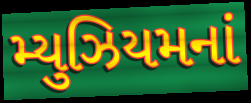
મ્યુઝિયમનાં